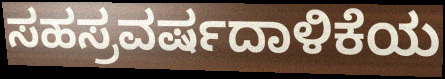
ಸಹಸ್ರವರ್ಷದಾಳಿಕೆಯ